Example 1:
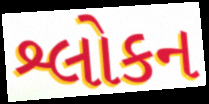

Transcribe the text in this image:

શ્લોકન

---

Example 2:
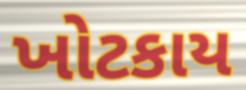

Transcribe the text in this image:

ખોટકાય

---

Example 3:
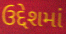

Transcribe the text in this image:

ઉદ્દેશમાં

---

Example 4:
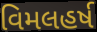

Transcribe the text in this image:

વિમલહર્ષ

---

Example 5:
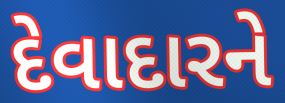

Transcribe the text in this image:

દેવાદારને